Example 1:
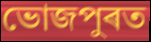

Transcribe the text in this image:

ভোজপুৰত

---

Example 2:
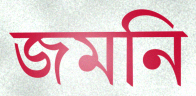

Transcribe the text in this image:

জমনি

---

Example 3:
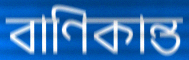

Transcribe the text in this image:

বাণিকান্ত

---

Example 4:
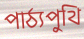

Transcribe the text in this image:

পাঠ্যপুথি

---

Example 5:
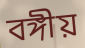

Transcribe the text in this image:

বঙ্গীয়